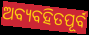
ଅବ୍ୟବହିତପୂର୍ବ